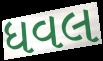
ધવલ